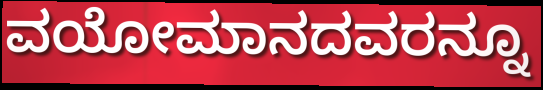
ವಯೋಮಾನದವರನ್ನೂ